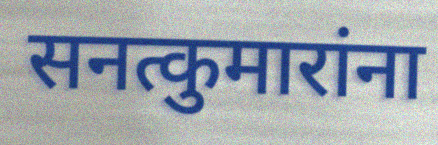
सनत्कुमारांना